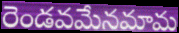
రెండవమేనమామ